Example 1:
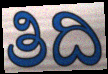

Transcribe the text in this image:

ತಿದಿ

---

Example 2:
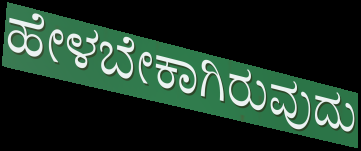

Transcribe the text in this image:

ಹೇಳಬೇಕಾಗಿರುವುದು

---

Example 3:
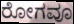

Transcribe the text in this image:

ರೋಗವೂ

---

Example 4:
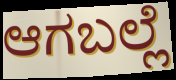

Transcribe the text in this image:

ಆಗಬಲ್ಲೆ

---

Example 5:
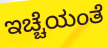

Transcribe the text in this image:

ಇಚ್ಚೆಯಂತೆ